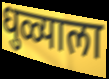
धुळ्याला